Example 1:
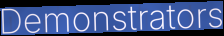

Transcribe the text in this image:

Demonstrators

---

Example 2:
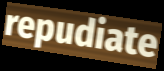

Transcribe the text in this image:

repudiate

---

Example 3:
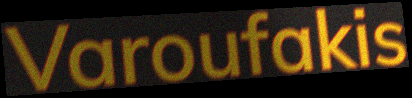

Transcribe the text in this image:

Varoufakis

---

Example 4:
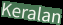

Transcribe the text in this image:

Keralan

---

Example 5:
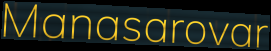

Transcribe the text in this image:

Manasarovar